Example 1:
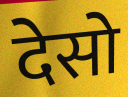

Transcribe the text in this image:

देसो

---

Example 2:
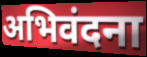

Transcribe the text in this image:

अभिवंदना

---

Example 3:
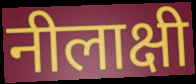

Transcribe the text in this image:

नीलाक्षी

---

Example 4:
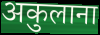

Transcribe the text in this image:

अकुलाना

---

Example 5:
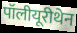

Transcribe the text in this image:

पॉलीयूरीथेन